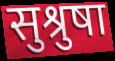
सुश्रुषा